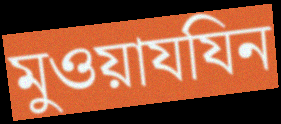
মুওয়াযযিন